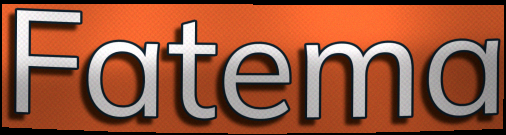
Fatema